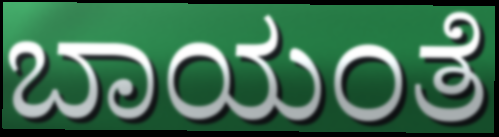
ಬಾಯಂತೆ